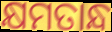
କ୍ଷମତାନ୍ଧ